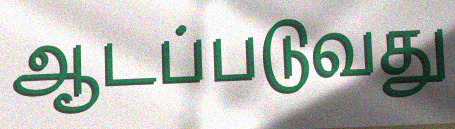
ஆடப்படுவது